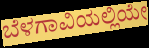
ಬೆಳಗಾವಿಯಲ್ಲಿಯೇ